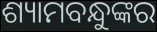
ଶ୍ୟାମବନ୍ଧୁଙ୍କର